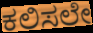
ಕಲಿಸಲೇ